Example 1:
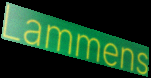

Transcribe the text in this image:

Lammens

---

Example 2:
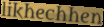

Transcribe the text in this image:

likhechhen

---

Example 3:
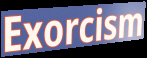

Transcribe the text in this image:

Exorcism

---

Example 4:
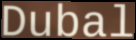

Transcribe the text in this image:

Dubal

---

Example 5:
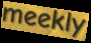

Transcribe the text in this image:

meekly